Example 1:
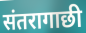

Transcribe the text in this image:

संतरागाछी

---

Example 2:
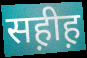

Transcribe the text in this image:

सह़ीह़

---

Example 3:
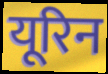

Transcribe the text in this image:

यूरिन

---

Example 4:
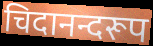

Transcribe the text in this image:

चिदानन्दरूप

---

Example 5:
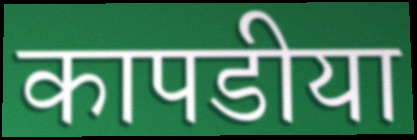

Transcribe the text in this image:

कापडीया